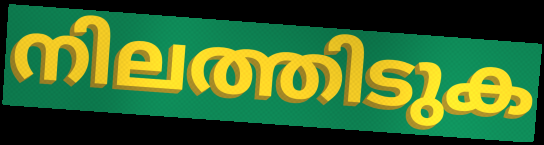
നിലത്തിടുക